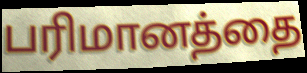
பரிமானத்தை